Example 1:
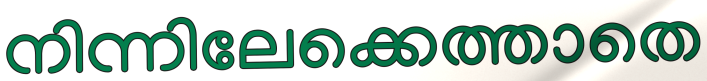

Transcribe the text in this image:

നിന്നിലേക്കെത്താതെ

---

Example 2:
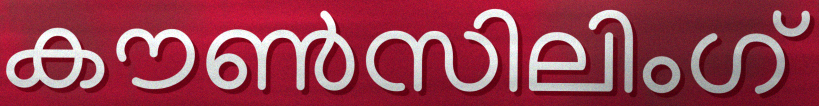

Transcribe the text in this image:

കൗൺസിലിംഗ്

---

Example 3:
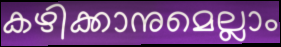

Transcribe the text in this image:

കഴിക്കാനുമെല്ലാം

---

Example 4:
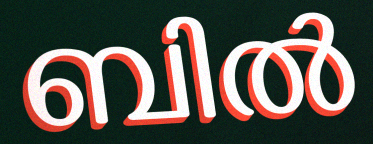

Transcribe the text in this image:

ബിൽ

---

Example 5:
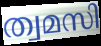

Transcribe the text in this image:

ത്വമസി